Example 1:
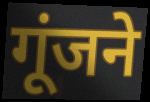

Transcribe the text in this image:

गूंजने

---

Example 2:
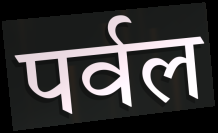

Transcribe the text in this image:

पर्वल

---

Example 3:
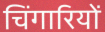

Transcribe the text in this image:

चिंगारियों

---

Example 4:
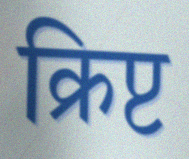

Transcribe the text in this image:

क्रिप्ट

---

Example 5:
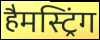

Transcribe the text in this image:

हैमस्ट्रिंग